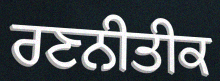
ਰਣਨੀਤੀਕ